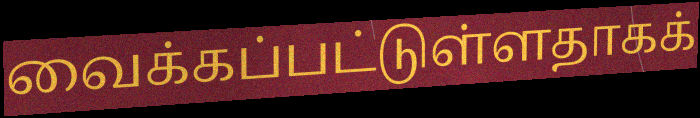
வைக்கப்பட்டுள்ளதாகக்